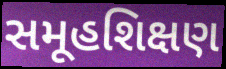
સમૂહશિક્ષણ